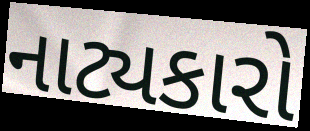
નાટ્યકારો